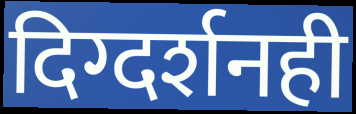
दिग्दर्शनही